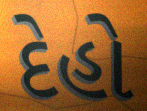
દેહો